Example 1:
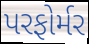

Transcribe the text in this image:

પરફોર્મર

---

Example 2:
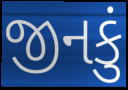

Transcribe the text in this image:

જીનકું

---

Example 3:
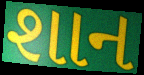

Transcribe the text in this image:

શાન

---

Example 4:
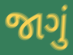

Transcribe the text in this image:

જાગું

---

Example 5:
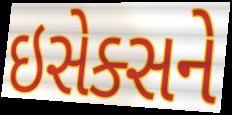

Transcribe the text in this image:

ઇસેક્સને